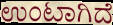
ಉಂಟಾಗಿದೆ